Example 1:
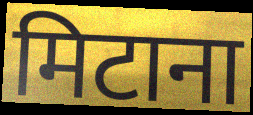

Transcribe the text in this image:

मिटाना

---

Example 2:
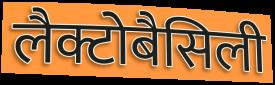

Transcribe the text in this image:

लैक्टोबैसिली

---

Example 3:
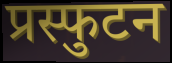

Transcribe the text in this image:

प्रस्‍फुटन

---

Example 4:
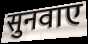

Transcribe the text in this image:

सुनवाए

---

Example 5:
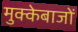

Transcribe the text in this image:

मुक्केबाजों